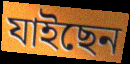
যাইছেন